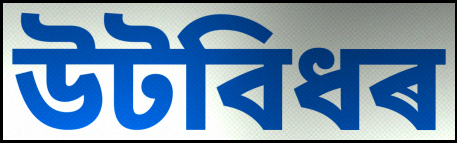
উটবিধৰ